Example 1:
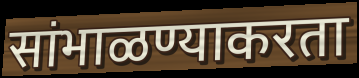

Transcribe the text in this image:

सांभाळण्याकरता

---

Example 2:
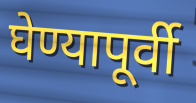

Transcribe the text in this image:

घेण्यापूर्वी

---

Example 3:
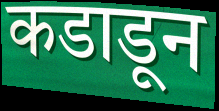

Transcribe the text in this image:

कडाडून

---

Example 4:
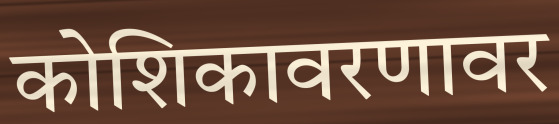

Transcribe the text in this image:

कोशिकावरणावर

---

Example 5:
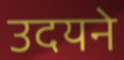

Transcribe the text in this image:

उदयने